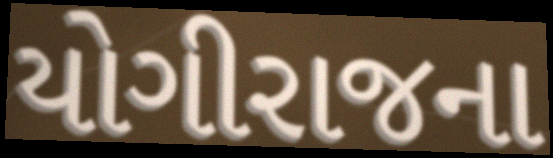
યોગીરાજના